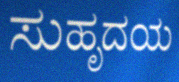
ಸುಹೃದಯ